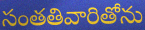
సంతతివారితోను